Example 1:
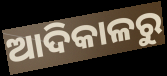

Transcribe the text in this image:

ଆଦିକାଳରୁ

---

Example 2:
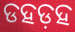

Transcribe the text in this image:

ଡହଡ଼ହ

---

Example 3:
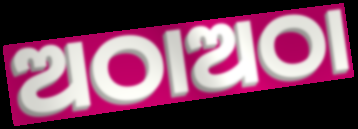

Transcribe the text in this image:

ଅଠାଅଠା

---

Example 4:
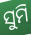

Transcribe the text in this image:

ସୁମି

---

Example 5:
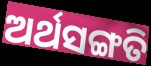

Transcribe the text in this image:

ଅର୍ଥସଙ୍ଗତି